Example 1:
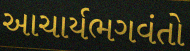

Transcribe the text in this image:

આચાર્યભગવંતો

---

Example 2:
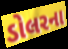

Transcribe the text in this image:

ડોલરના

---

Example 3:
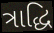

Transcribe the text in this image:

ત્રાદ્ધિ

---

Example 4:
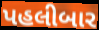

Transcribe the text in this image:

પહલીબાર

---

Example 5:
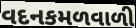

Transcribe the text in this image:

વદનકમળવાળી